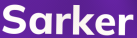
Sarker